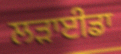
ਲੜਾਈਡਾ